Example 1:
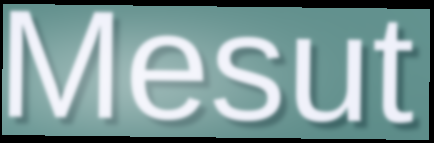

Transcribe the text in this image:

Mesut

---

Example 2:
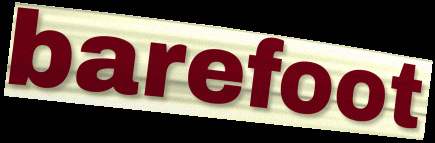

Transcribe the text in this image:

barefoot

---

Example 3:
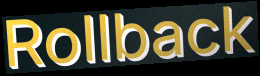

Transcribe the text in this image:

Rollback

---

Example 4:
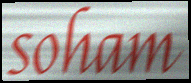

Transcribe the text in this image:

soham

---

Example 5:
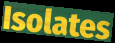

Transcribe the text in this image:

Isolates